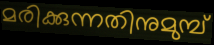
മരിക്കുന്നതിനുമുമ്പ്